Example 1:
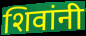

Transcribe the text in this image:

शिवांनी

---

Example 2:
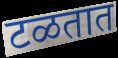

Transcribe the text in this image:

टळतात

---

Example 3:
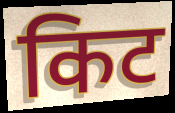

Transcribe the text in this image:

किट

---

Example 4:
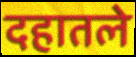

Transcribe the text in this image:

दहातले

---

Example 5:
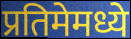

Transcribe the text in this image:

प्रतिमेमध्ये